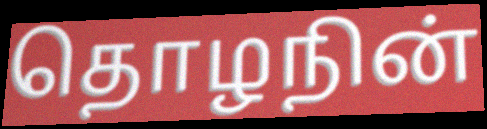
தொழநின்